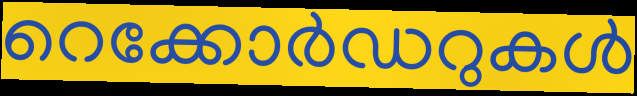
റെക്കോർഡറുകൾ